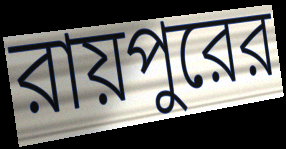
রায়পুরের